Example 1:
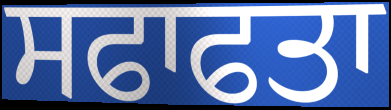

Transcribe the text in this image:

ਸਫਾਫਤਾ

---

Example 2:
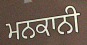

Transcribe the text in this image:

ਮਨਕਾਨੀ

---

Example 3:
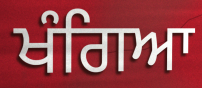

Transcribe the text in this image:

ਖੰਗਿਆ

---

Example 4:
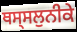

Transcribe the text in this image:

ਥਸ੍ਸਲੁਨੀਕੇ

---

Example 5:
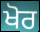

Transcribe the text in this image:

ਖੋਰ